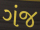
ગંજ